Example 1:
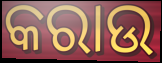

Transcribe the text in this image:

କରାଉ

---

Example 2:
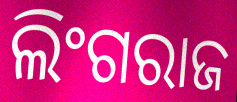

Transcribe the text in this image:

ଲିଂଗରାଜ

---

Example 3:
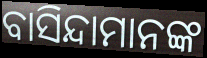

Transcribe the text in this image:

ବାସିନ୍ଦାମାନଙ୍କ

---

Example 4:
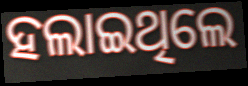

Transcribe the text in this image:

ହଲାଇଥିଲେ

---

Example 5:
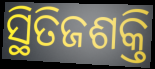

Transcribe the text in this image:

ସ୍ଥିତିଜଶକ୍ତି